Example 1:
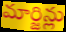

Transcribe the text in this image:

మార్జిన్లు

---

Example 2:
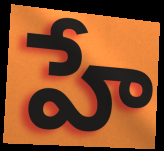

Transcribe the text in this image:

హే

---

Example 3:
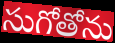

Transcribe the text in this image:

సుగోతోను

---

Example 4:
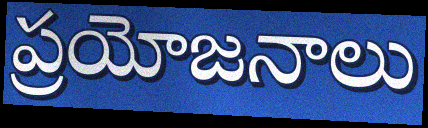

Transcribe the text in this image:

ప్రయోజనాలు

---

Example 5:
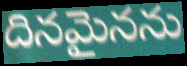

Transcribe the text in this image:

దినమైనను